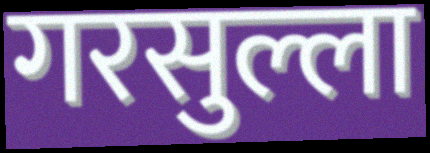
गरसुल्ला